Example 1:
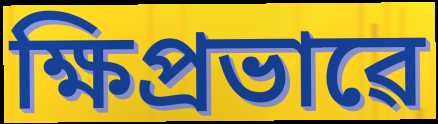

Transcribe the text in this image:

ক্ষিপ্ৰভাৱে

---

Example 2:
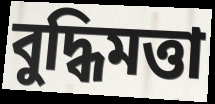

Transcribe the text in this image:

বুদ্ধিমত্তা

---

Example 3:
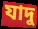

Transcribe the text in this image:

যাদু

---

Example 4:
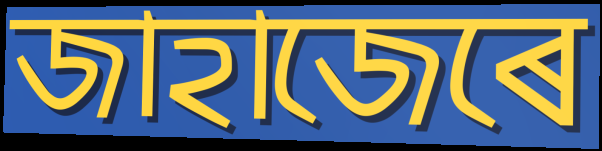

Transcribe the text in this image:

জাহাজেৰে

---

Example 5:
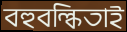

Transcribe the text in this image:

বহুবল্কিতাই